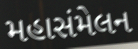
મહાસંમેલન